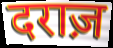
दराज़